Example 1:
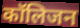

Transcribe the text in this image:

कॉलिजन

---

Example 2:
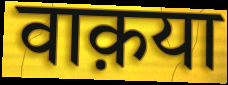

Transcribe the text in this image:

वाक़या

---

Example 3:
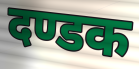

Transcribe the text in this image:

दण्डक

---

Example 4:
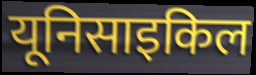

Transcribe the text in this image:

यूनिसाइकिल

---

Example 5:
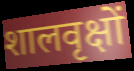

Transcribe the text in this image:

शालवृक्षों